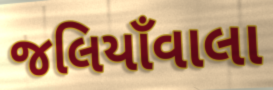
જલિયાઁવાલા